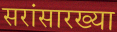
सरांसारख्या